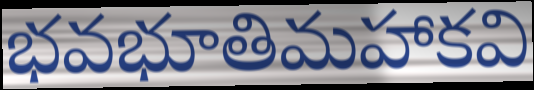
భవభూతిమహాకవి